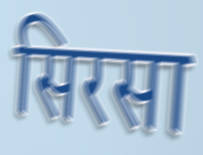
सिरसा